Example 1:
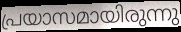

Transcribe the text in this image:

പ്രയാസമായിരുന്നു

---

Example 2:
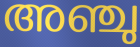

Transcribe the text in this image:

അഞ്ചു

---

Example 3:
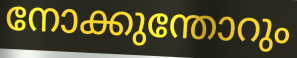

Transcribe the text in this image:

നോക്കുന്തോറും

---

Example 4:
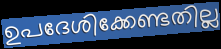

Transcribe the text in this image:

ഉപദേശിക്കേണ്ടതില്ല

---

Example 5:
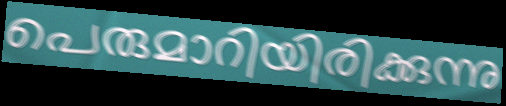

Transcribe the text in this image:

പെരുമാറിയിരിക്കുന്നു